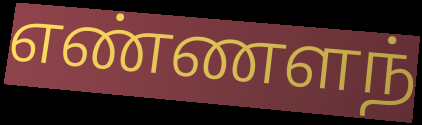
எண்ணளந்